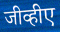
जीव्हीए